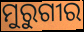
ମୁରୁଗୀର